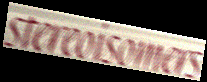
stereoisomers